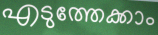
എടുത്തേക്കാം